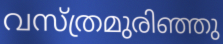
വസ്ത്രമുരിഞ്ഞു